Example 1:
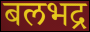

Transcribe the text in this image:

बलभद्र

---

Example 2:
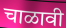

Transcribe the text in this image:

चाळावी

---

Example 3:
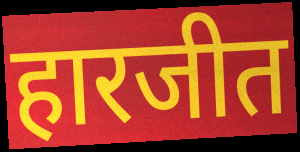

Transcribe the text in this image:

हारजीत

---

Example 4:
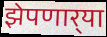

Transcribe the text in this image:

झेपणार्‍या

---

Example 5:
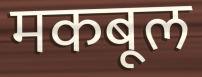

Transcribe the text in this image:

मकबूल